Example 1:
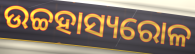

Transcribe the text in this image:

ଉଚ୍ଚହାସ୍ୟରୋଳ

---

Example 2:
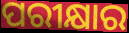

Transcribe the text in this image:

ପରୀକ୍ଷାର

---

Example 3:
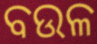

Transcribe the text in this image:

ବଉଳ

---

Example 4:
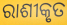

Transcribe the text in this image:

ରାଶୀକୃତ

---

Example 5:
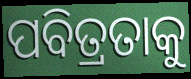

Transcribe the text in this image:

ପବିତ୍ରତାକୁ